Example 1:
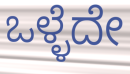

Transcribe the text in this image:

ಒಳ್ಳೆದೇ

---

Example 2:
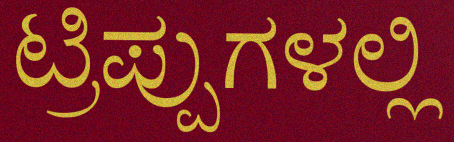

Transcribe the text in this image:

ಟ್ರಿಪ್ಪುಗಳಲ್ಲಿ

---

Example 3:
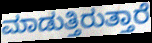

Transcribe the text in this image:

ಮಾಡುತ್ತಿರುತ್ತಾರೆ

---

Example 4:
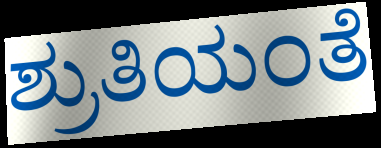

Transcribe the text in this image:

ಶ್ರುತಿಯಂತೆ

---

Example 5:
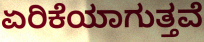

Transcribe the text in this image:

ಏರಿಕೆಯಾಗುತ್ತವೆ